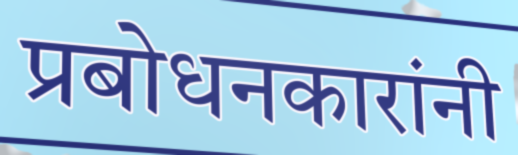
प्रबोधनकारांनी